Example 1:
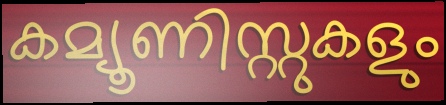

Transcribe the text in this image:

കമ്യൂണിസ്റ്റുകളും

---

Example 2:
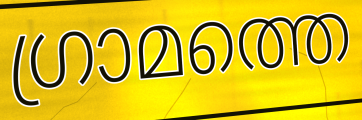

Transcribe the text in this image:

ഗ്രാമത്തെ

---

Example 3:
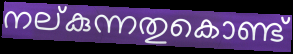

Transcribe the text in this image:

നല്കുന്നതുകൊണ്ട്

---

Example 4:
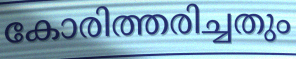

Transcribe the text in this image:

കോരിത്തരിച്ചതും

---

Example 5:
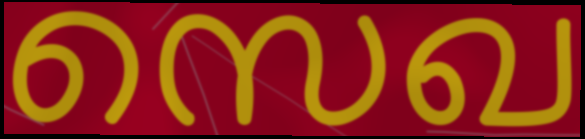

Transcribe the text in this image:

സെഖ